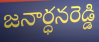
జనార్ధనరెడ్డి